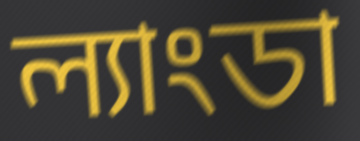
ল্যাংডা